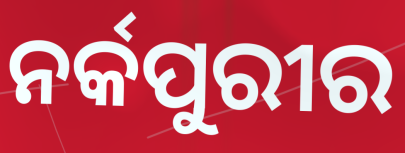
ନର୍କପୁରୀର